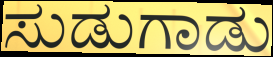
ಸುಡುಗಾಡು